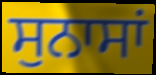
ਸੁਨਾਸਾਂ